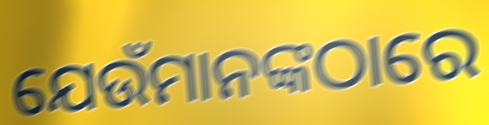
ଯେଉଁମାନଙ୍କଠାରେ